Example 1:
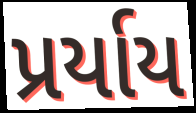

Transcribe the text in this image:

પ્રર્યાય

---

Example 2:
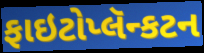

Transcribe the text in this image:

ફાઇટોપ્લૅન્કટન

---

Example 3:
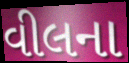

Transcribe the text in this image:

વીલના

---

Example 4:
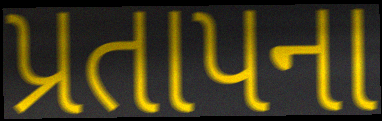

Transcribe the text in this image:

પ્રતાપના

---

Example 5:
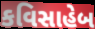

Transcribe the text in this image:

કવિસાહેબ